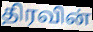
திரவின்